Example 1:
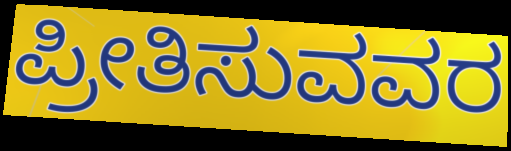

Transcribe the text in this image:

ಪ್ರೀತಿಸುವವರ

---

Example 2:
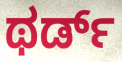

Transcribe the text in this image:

ಥರ್ಡ್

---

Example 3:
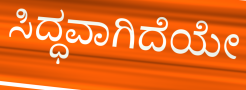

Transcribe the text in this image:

ಸಿದ್ಧವಾಗಿದೆಯೇ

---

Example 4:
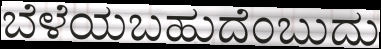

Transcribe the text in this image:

ಬೆಳೆಯಬಹುದೆಂಬುದು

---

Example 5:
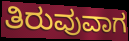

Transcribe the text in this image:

ತಿರುವುವಾಗ